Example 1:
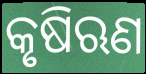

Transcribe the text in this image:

କୃଷିଋଣ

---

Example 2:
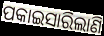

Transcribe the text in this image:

ପକାଇସାରିଲାଣି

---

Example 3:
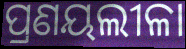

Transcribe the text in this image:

ପ୍ରଣୟଲୀଳା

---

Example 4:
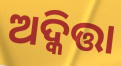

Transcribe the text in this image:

ଅଦ୍କିତ୍ତା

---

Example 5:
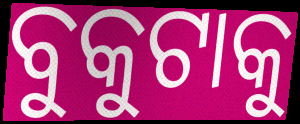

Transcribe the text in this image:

ବୁକୁଟାକୁ